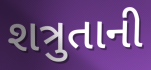
શત્રુતાની